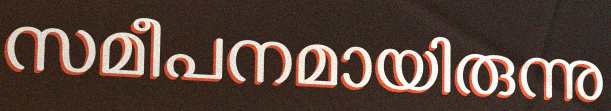
സമീപനമായിരുന്നു